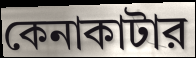
কেনাকাটার